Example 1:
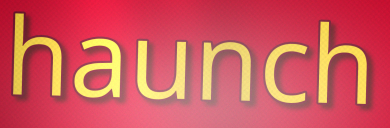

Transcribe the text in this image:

haunch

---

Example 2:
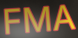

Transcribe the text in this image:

FMA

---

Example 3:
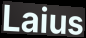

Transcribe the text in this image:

Laius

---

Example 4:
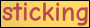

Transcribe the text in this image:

sticking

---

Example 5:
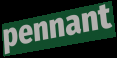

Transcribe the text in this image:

pennant